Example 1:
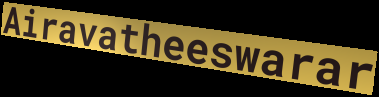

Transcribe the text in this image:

Airavatheeswarar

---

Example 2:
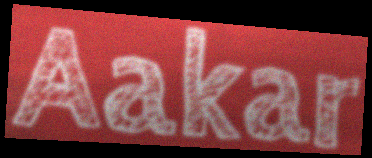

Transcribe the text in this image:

Aakar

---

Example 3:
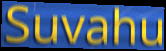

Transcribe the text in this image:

Suvahu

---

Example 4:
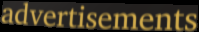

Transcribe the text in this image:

advertisements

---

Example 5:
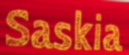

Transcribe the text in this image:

Saskia